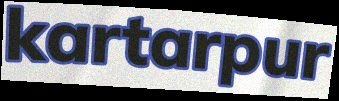
kartarpur